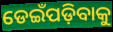
ଡେଇଁପଡ଼ିବାକୁ